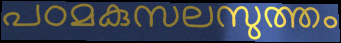
പഠമകുസലസുത്തം